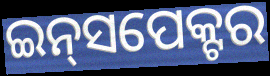
ଇନ୍‍ସପେକ୍ଟର